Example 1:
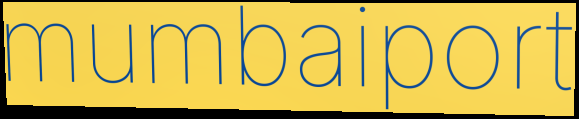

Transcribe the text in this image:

mumbaiport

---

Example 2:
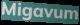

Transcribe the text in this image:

Migavum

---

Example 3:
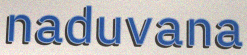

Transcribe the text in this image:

naduvana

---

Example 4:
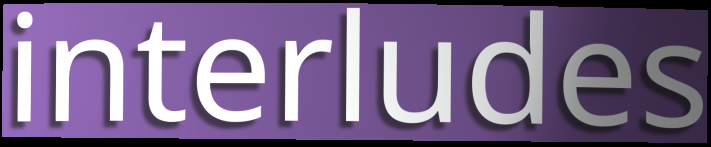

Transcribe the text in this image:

interludes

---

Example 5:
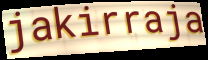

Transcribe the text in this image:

jakirraja